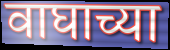
वाघाच्या